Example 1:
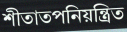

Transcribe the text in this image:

শীতাতপনিয়ন্ত্রিত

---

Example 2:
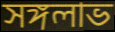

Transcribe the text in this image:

সঙ্গলাভ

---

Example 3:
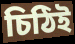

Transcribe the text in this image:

চিঠিই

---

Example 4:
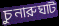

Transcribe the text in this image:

চুনারুঘাট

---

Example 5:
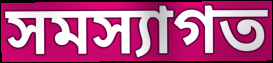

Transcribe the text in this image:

সমস্যাগত